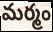
మర్మం